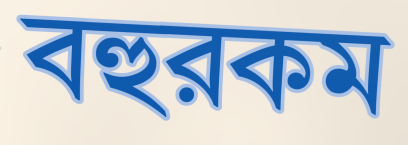
বহুরকম